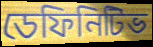
ডেফিনিটিভ